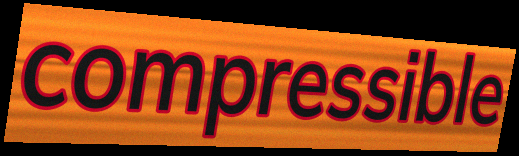
compressible